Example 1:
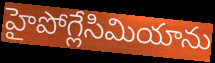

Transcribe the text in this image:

హైపోగ్లేసిమియాను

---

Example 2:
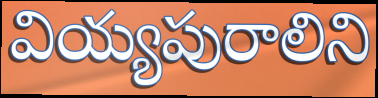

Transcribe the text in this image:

వియ్యపురాలిని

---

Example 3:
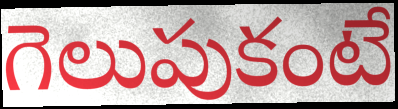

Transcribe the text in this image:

గెలుపుకంటే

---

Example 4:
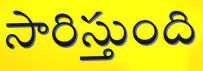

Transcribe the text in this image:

సారిస్తుంది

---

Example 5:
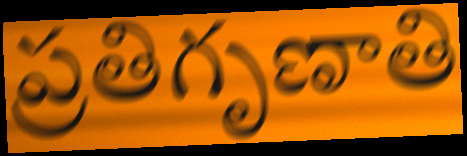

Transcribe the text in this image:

ప్రతిగృణాతి